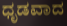
ಧೃಡವಾದ